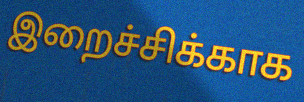
இறைச்சிக்காக